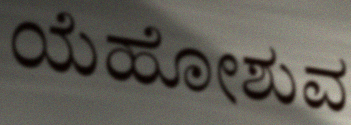
ಯೆಹೋಶುವ